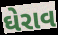
ઘેરાવ